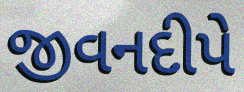
જીવનદીપે